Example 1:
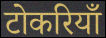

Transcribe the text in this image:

टोकरियाँ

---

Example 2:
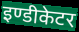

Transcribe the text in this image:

इण्डीकेटर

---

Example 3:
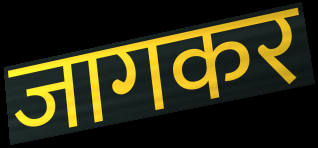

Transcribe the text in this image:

जागकर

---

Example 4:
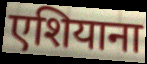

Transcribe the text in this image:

एशियाना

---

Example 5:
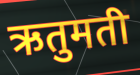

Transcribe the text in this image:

ऋतुमती